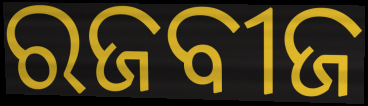
ରଜବୀଜ